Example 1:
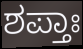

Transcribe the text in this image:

ಶಪ್ತಾಃ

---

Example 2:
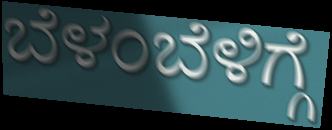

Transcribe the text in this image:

ಬೆಳಂಬೆಳಿಗ್ಗೆ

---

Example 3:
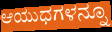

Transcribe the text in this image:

ಆಯುಧಗಳನ್ನೂ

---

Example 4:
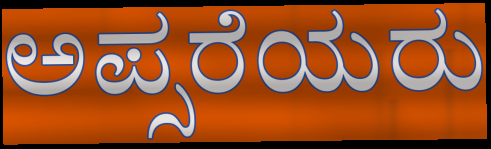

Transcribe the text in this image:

ಅಪ್ಸರೆಯರು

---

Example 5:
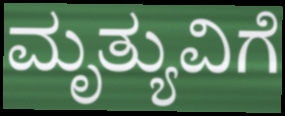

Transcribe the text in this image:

ಮೃತ್ಯುವಿಗೆ